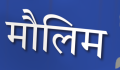
मौलिम